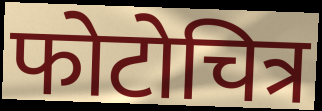
फोटोचित्र